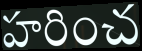
హరించ